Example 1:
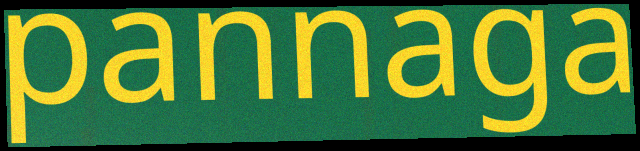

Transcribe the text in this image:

pannaga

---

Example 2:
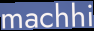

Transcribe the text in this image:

machhi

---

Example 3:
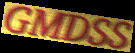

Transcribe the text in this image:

GMDSS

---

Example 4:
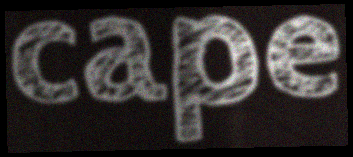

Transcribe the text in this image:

cape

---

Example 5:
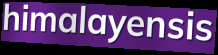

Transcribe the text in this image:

himalayensis